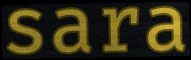
sara